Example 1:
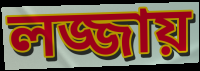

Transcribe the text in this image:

লজ্জায়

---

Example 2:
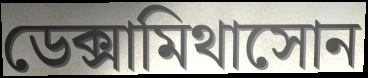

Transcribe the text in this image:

ডেক্সামিথাসোন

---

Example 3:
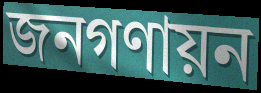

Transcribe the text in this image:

জনগণায়ন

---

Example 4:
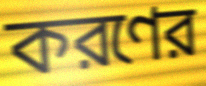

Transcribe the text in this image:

করণের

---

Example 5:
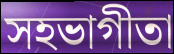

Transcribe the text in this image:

সহভাগীতা